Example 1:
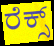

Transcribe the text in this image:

ರೆಕ್ಸ್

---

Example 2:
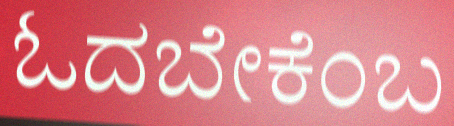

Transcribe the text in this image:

ಓದಬೇಕೆಂಬ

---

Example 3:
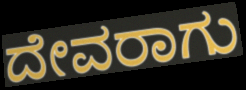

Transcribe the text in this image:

ದೇವರಾಗು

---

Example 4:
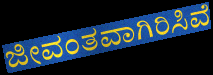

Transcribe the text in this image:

ಜೀವಂತವಾಗಿರಿಸಿವೆ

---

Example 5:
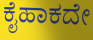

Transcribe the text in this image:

ಕೈಹಾಕದೇ